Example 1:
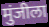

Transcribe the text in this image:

मुंजीला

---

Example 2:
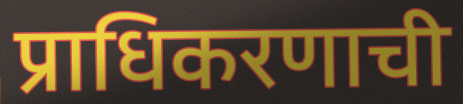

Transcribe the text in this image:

प्राधिकरणाची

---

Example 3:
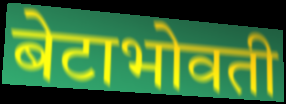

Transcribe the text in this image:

बेटाभोवती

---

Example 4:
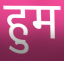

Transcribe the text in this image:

हुम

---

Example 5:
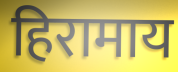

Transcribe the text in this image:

हिरामाय